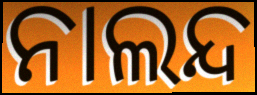
ନାଲନ୍ଦ